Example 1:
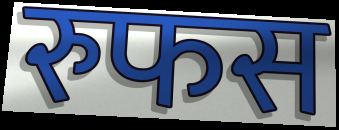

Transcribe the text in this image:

रुफस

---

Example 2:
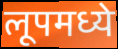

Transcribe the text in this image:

लूपमध्ये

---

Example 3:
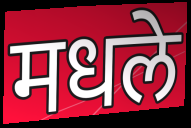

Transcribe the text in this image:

मधले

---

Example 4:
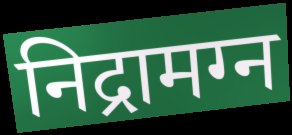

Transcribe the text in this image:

निद्रामग्न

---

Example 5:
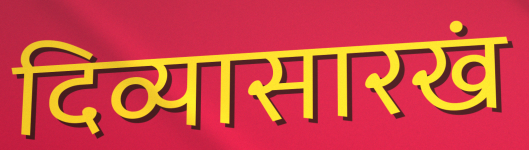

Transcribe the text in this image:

दिव्यासारखं